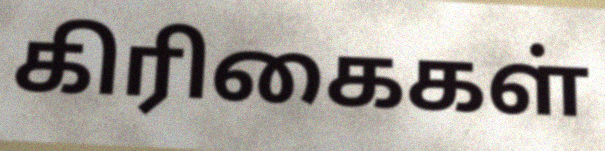
கிரிகைகள்